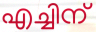
എച്ചിന്